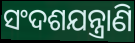
ସଂଦଶଯନ୍ତ୍ରାଣି